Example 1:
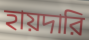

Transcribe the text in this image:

হায়দারি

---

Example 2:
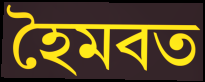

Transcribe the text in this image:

হৈমবত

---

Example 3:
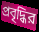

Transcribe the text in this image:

প্রবৃদ্ধির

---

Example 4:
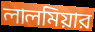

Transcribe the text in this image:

লালমিয়ার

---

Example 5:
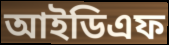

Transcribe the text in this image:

আইডিএফ